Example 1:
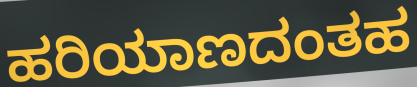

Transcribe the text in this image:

ಹರಿಯಾಣದಂತಹ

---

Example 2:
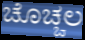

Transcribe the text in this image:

ಚೊಚ್ಚಲ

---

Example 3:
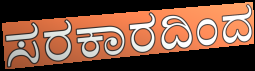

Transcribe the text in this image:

ಸರಕಾರದಿಂದ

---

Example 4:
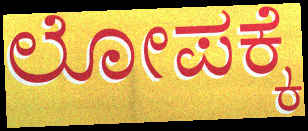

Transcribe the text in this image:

ಲೋಪಕ್ಕೆ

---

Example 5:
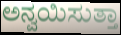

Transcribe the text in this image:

ಅನ್ವಯಿಸುತ್ತಾ